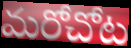
మరోచోట